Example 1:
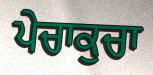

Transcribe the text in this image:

ਪੇਚਾਕੁਚਾ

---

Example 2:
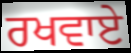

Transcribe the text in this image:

ਰਖਵਾਏ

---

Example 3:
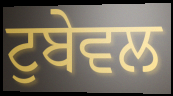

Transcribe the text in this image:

ਟੁਬੇਵਲ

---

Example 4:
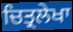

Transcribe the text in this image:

ਚਿਤ੍ਰਲੇਖਾ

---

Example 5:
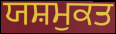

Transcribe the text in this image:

ਯਸ਼ਮੁਕਤ